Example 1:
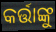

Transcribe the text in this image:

କର୍ତ୍ତାଙ୍କୁ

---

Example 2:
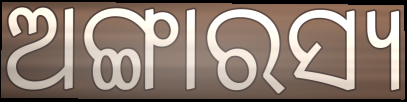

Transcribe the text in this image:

ଅଙ୍ଗାରସ୍ୟ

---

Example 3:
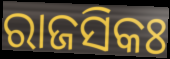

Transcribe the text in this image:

ରାଜସିକଃ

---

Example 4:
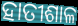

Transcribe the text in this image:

ହାତୀଶାଳ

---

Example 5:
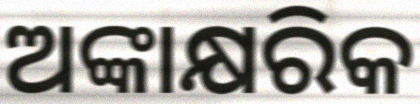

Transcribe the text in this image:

ଅଙ୍କାକ୍ଷରିକ